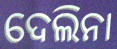
ଦେଲିନା